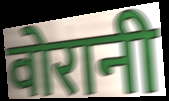
वोरानी